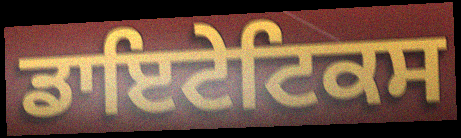
ਡਾਇਟੇਟਿਕਸ